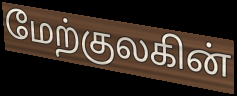
மேற்குலகின்